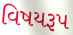
વિષયરૂપ